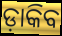
ଡ଼ାକିବ